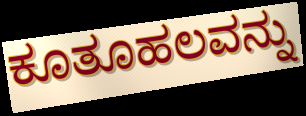
ಕೂತೂಹಲವನ್ನು